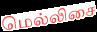
மெல்லிசை